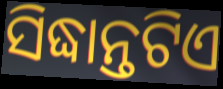
ସିଦ୍ଧାନ୍ତଟିଏ